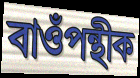
বাওঁপন্থীক